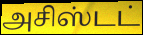
அசிஸ்டட்